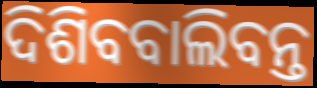
ଦିଶିବବାଲିବନ୍ତ